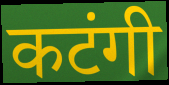
कटंगी